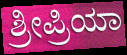
ಶ್ರೀಪ್ರಿಯಾ